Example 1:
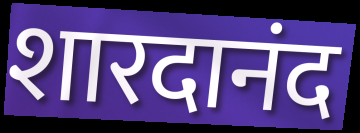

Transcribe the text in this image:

शारदानंद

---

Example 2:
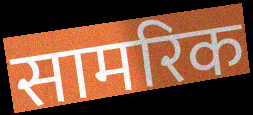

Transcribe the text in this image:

सामरिक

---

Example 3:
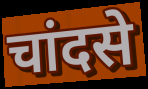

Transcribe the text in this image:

चांदसे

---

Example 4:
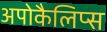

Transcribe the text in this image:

अपोकैलिप्स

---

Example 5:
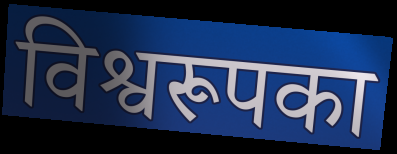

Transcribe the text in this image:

विश्वरूपका